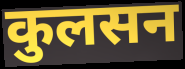
कुलसन